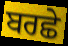
ਬਰਛੇ